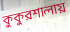
কুকুরশালায়